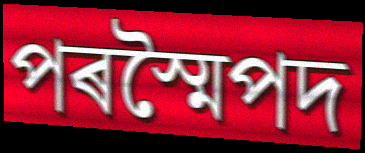
পৰস্মৈপদ